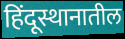
हिंदूस्थानातील